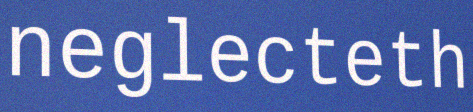
neglecteth